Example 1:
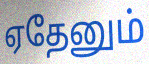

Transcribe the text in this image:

ஏதேனும்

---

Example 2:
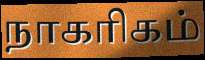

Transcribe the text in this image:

நாகரிகம்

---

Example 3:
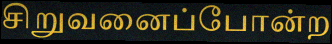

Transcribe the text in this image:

சிறுவனைப்போன்ற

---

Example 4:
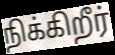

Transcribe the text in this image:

நிக்கிறீர்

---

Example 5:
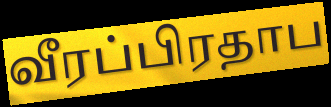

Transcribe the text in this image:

வீரப்பிரதாப